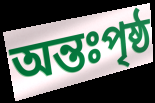
অন্তঃপৃষ্ঠ